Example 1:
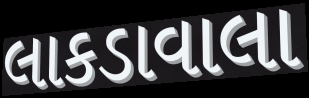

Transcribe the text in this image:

લાકડાવાલા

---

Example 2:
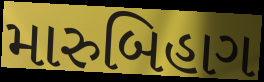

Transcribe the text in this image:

મારુબિહાગ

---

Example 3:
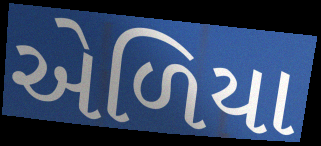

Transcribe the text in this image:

એળિયા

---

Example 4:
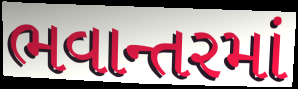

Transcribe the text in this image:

ભવાન્તરમાં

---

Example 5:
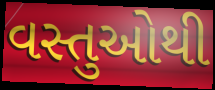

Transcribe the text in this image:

વસ્તુઓથી